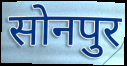
सोनपुर